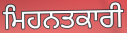
ਮਿਹਨਤਕਾਰੀ